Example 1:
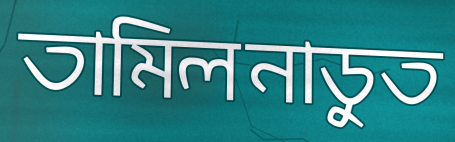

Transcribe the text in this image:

তামিলনাডুত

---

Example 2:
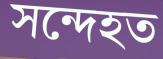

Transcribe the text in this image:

সন্দেহত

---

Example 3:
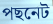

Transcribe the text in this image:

পছনেট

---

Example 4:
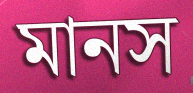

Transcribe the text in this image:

মানস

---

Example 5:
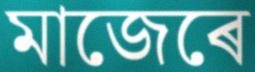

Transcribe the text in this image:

মাজেৰে